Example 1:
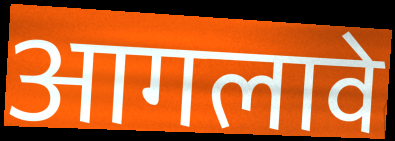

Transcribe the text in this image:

आगलावे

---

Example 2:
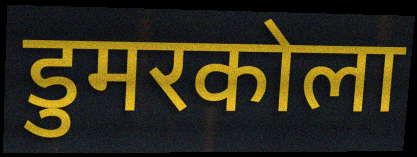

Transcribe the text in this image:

डुमरकोला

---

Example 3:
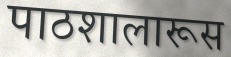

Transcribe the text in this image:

पाठशालारूस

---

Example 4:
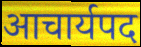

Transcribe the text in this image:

आचार्यपद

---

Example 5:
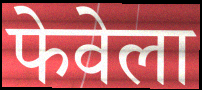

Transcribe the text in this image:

फेवेला